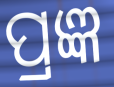
ପ୍ରଜ୍ଞ